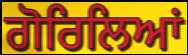
ਗੋਰਿਲਿਆਂ